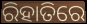
ରିହାତିରେ